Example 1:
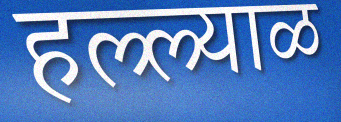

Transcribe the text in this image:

हल्ल्याळ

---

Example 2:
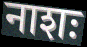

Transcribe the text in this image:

नाशः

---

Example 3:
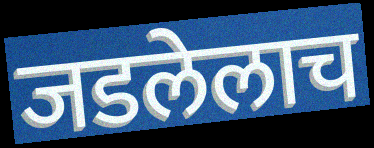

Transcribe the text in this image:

जडलेलाच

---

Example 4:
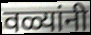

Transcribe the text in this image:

वळ्यांनी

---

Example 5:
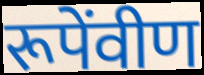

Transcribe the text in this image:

रूपेंवीण